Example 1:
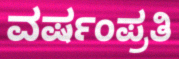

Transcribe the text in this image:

ವರ್ಷಂಪ್ರತಿ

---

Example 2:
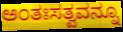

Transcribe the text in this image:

ಅಂತಃಸತ್ವವನ್ನೂ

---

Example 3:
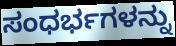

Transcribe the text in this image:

ಸಂಧರ್ಭಗಳನ್ನು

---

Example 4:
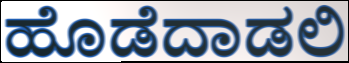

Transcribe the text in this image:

ಹೊಡೆದಾಡಲಿ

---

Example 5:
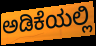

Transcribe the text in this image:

ಅಡಿಕೆಯಲ್ಲಿ